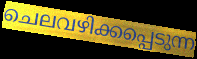
ചെലവഴിക്കപ്പെടുന്ന